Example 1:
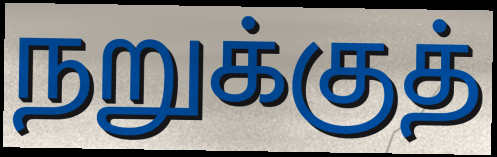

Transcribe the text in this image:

நறுக்குத்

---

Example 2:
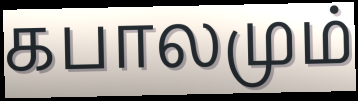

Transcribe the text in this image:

கபாலமும்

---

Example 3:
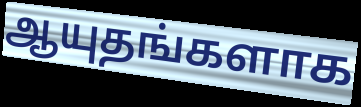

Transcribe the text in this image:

ஆயுதங்களாக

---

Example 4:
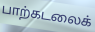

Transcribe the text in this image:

பாற்கடலைக்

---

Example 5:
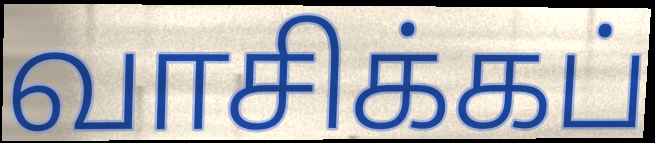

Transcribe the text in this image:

வாசிக்கப்